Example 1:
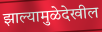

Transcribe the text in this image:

झाल्यामुळेदेखील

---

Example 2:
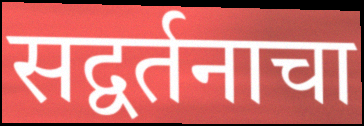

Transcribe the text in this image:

सद्वर्तनाचा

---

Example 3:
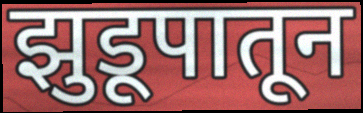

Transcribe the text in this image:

झुडूपातून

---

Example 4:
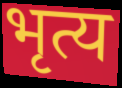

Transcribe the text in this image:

भृत्य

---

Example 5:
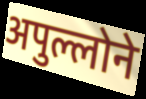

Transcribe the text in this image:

अपुल्लोने